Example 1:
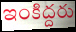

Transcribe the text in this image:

ఇంకిద్దరు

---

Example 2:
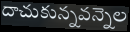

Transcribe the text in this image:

దాచుకున్నవన్నెల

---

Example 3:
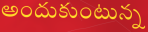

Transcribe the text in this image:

అందుకుంటున్న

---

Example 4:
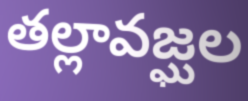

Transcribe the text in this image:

తల్లావజ్ఘల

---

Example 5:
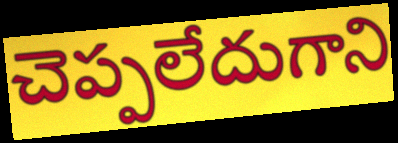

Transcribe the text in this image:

చెప్పలేదుగాని